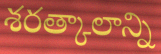
శరత్కాలాన్ని